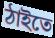
ঠাইতে